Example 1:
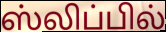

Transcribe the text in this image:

ஸ்லிப்பில்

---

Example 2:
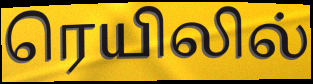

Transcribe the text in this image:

ரெயிலில்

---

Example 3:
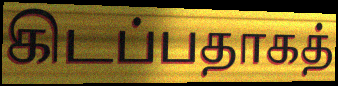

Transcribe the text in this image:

கிடப்பதாகத்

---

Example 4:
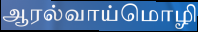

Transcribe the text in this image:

ஆரல்வாய்மொழி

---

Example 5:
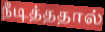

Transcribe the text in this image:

நீடித்ததால்